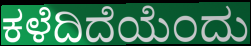
ಕಳೆದಿದೆಯೆಂದು